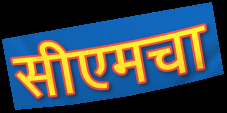
सीएमचा